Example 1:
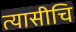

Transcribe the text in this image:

त्यासीचि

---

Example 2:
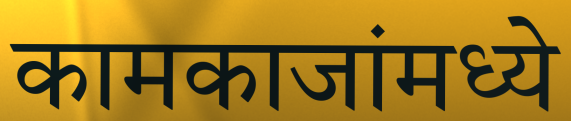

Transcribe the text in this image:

कामकाजांमध्ये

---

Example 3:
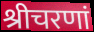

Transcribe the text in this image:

श्रीचरणां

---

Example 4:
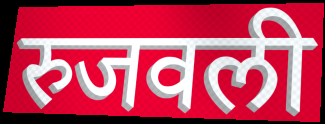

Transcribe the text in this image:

रुजवली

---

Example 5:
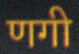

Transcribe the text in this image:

णगी